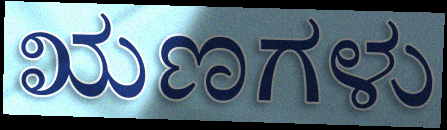
ಋಣಗಳು